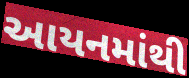
આયનમાંથી